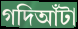
গদিআঁটা